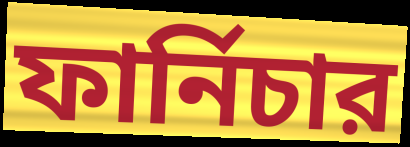
ফার্নিচার